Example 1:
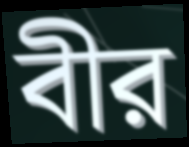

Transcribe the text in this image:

বীর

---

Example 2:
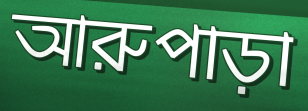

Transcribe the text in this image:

আরুপাড়া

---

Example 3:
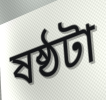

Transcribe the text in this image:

ষষ্ঠটা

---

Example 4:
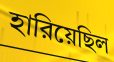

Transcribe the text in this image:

হারিয়েছিল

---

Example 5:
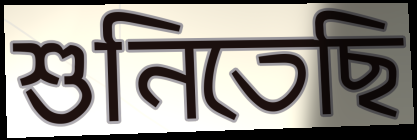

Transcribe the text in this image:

শুনিতেছি